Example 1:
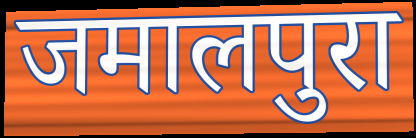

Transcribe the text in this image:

जमालपुरा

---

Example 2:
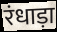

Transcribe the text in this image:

रंधाड़ा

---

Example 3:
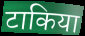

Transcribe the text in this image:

टाकिया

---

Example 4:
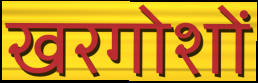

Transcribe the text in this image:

खरगोशों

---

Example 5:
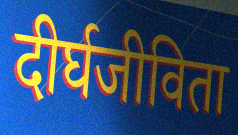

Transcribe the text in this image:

दीर्घजीविता